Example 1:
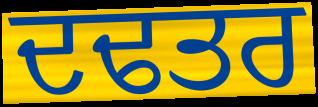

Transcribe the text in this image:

ਦਢਤਰ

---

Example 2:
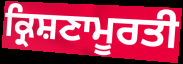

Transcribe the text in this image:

ਕ੍ਰਿਸ਼ਣਾਮੂਰਤੀ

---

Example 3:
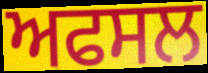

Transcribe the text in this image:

ਅਫਸਲ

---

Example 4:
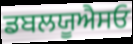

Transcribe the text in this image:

ਡਬਲਯੂਐਸਓ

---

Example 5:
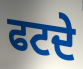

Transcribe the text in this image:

ਫਟਦੇ